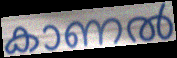
കാണൽ